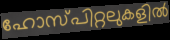
ഹോസ്പിറ്റലുകളിൽ